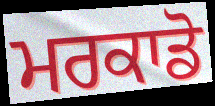
ਮਰਕਾਡੋ